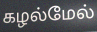
கழல்மேல்